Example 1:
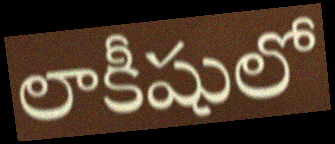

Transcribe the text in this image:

లాకీషులో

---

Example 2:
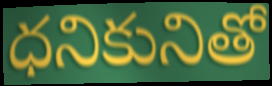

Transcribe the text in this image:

ధనికునితో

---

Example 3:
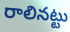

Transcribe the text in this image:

రాలినట్టు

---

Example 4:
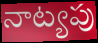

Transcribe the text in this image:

నాట్యపు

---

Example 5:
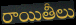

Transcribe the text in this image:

రాయితీలు